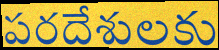
పరదేశులకు